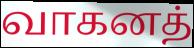
வாகனத்